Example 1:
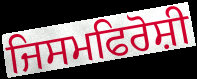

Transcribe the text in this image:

ਜਿਸਮਫਿਰੋਸ਼ੀ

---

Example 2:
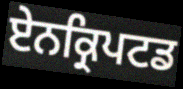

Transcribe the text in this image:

ਏਨਕ੍ਰਿਪਟਡ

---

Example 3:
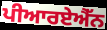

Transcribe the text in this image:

ਪੀਆਰਏਐੱਨ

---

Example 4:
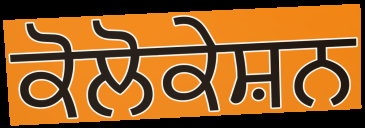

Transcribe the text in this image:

ਕੋਲੋਕੇਸ਼ਨ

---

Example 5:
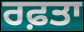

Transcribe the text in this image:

ਰਫ਼ਤਾ